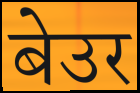
बेउर